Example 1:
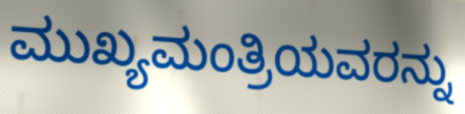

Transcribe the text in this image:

ಮುಖ್ಯಮಂತ್ರಿಯವರನ್ನು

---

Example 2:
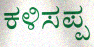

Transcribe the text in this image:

ಕಳಿಸಪ್ಪ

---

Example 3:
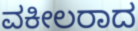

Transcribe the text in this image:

ವಕೀಲರಾದ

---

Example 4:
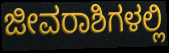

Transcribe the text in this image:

ಜೀವರಾಶಿಗಳಲ್ಲಿ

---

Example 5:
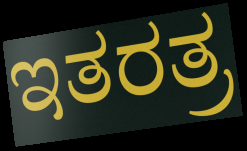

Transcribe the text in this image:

ಇತರತ್ರ